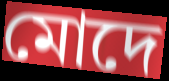
মোদে